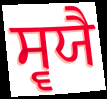
ਸ੍ਵਯੈ